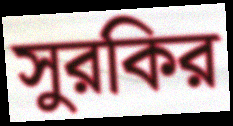
সুরকির